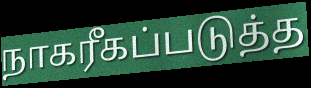
நாகரீகப்படுத்த